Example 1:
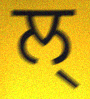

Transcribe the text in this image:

ਲ੍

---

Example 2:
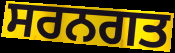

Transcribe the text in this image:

ਸਰਨਗਤ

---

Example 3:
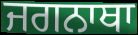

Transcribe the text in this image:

ਜਗਨਾਥਾ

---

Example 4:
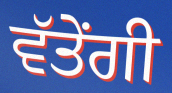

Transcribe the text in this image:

ਵੱਤੇਂਗੀ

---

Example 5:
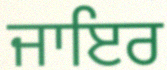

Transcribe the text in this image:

ਜਾਇਰ